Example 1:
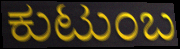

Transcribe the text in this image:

ಕುಟುಂಬ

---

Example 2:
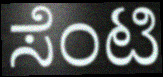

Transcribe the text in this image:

ಸೆಂಟಿ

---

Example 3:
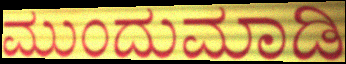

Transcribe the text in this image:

ಮುಂದುಮಾಡಿ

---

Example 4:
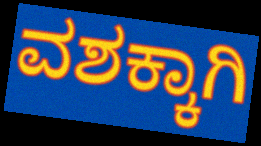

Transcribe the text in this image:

ವಶಕ್ಕಾಗಿ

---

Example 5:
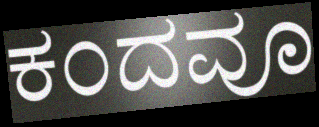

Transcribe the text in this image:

ಕಂದವೂ